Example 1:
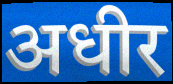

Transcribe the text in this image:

अधीर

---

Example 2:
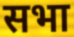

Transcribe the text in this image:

सभा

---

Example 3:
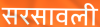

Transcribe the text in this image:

सरसावली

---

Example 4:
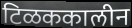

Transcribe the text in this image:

टिळककालीन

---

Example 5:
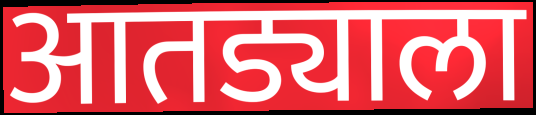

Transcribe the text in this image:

आतड्याला